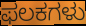
ಫಲಕಗಳು